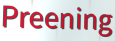
Preening